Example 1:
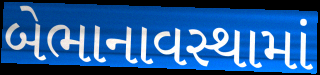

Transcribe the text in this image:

બેભાનાવસ્થામાં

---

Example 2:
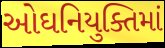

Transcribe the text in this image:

ઓઘનિયુક્તિમાં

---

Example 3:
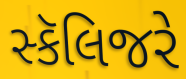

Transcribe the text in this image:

સ્કૅલિજરે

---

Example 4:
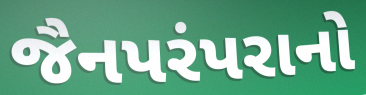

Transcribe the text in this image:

જૈનપરંપરાનો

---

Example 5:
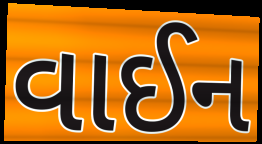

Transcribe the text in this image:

વાઈન